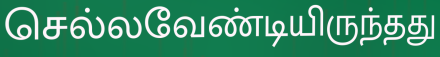
செல்லவேண்டியிருந்தது